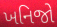
ખનિજો